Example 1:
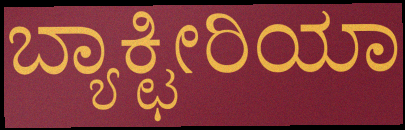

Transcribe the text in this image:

ಬ್ಯಾಕ್ಟೀರಿಯಾ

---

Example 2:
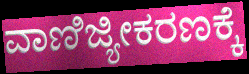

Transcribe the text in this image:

ವಾಣಿಜ್ಯೀಕರಣಕ್ಕೆ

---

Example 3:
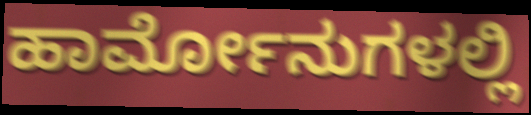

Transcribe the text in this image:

ಹಾರ್ಮೋನುಗಳಲ್ಲಿ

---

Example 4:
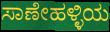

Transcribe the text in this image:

ಸಾಣೇಹಳ್ಳಿಯ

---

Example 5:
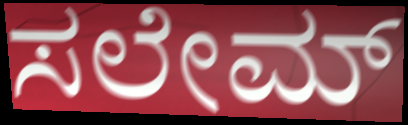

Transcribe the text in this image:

ಸಲೇಮ್